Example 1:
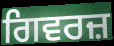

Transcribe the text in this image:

ਗਿਵਰਜ਼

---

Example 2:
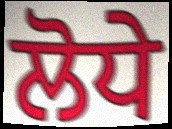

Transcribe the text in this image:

ਲੋਧੇ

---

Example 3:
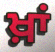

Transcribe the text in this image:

ਖ਼ਾਂ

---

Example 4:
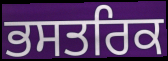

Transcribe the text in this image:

ਭਸਤਰਿਕ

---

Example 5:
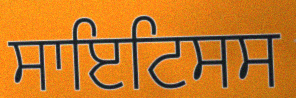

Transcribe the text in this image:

ਸਾਇਟਿਸਸ